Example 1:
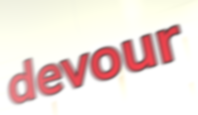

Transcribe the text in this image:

devour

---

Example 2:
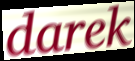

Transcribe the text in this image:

darek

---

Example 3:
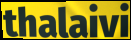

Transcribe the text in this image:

thalaivi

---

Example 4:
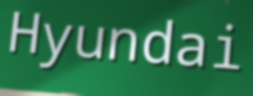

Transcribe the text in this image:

Hyundai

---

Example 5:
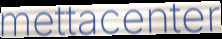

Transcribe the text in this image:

mettacenter